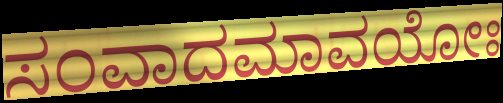
ಸಂವಾದಮಾವಯೋಃ